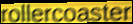
rollercoaster